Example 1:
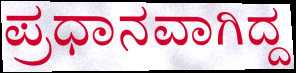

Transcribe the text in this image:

ಪ್ರಧಾನವಾಗಿದ್ದ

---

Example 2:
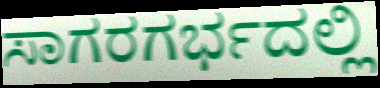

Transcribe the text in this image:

ಸಾಗರಗರ್ಭದಲ್ಲಿ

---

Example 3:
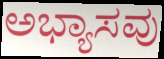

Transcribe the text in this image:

ಅಭ್ಯಾಸವು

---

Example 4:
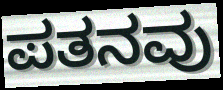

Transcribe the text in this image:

ಪತನವು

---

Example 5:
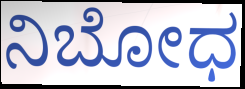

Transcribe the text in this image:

ನಿಬೋಧ